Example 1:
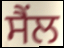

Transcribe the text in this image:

ਸੈਂਲ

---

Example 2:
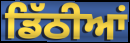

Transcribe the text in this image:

ਡਿੱਠੀਆਂ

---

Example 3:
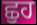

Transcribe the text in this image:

ਛੁਹ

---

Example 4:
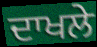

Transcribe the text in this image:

ਦਾਖਲੇ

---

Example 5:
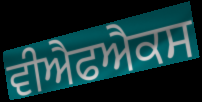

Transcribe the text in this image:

ਵੀਐਫਐਕਸ